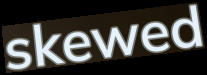
skewed